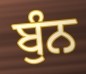
ਬੁੰਨ